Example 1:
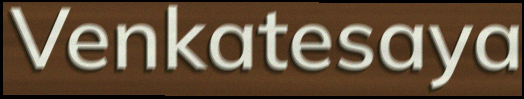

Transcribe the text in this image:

Venkatesaya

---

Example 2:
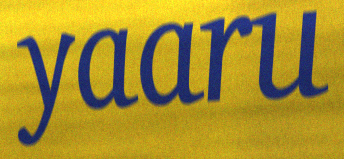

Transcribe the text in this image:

yaaru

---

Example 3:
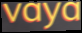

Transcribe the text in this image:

vaya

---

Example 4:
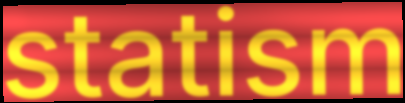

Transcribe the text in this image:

statism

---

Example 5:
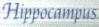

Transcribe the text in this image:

Hippocampus